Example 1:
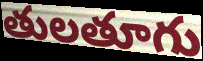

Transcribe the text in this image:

తులతూగు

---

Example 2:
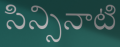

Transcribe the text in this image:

సిన్సినాటి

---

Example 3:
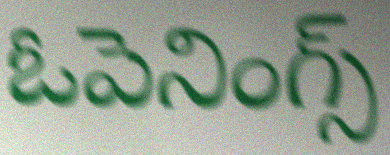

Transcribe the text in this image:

ఓపెనింగ్స్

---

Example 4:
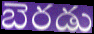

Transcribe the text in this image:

బెరడు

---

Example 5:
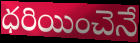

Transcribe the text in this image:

ధరియించెనే